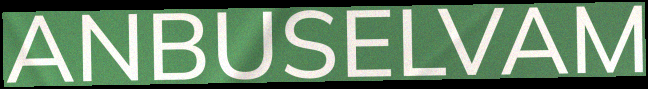
ANBUSELVAM